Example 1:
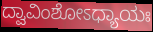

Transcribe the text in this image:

ದ್ವಾವಿಂಶೋಽಧ್ಯಾಯಃ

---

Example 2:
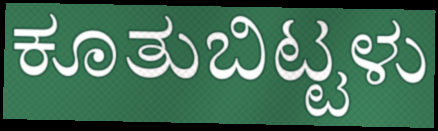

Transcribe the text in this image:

ಕೂತುಬಿಟ್ಟಳು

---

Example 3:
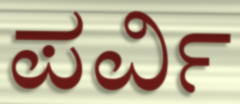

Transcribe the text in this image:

ಪರ್ವಿ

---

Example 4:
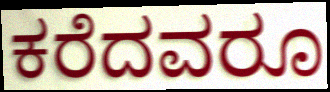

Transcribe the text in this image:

ಕರೆದವರೂ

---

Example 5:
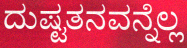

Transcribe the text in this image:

ದುಷ್ಟತನವನ್ನೆಲ್ಲ